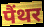
पैंथर